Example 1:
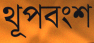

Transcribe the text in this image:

থূপবংশ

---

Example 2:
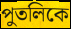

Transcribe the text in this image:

পুতলিকে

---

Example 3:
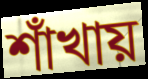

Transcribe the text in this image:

শাঁখায়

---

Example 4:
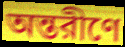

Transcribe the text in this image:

অন্তরীণে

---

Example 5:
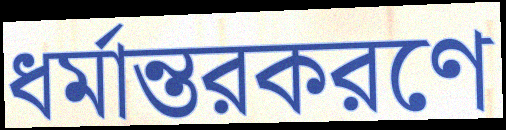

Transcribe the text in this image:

ধর্মান্তরকরণে